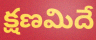
క్షణమిదే